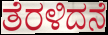
ತೆರಳಿದನೆ